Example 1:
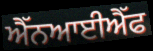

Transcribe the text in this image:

ਐੱਨਆਈਐੱਫ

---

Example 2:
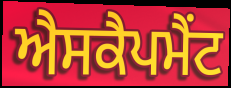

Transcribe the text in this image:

ਐਸਕੈਪਮੈਂਟ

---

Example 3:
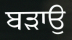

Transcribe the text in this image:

ਬਡ਼ਾਉ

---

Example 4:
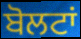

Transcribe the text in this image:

ਬੋਲਟਾਂ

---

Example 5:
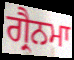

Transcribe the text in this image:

ਗ੍ਰੈਨਮਾ